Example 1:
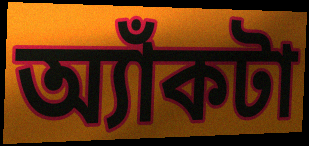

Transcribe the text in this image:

অ্যাঁকটা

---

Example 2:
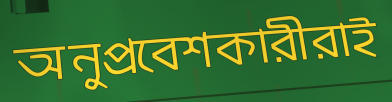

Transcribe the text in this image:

অনুপ্রবেশকারীরাই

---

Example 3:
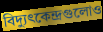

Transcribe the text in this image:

বিদ্যুৎকেন্দ্রগুলোও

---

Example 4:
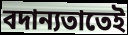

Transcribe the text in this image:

বদান্যতাতেই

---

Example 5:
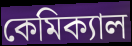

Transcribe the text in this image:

কেমিক্যাল